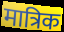
मात्रिक